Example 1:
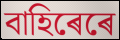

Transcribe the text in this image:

বাহিৰেৰে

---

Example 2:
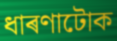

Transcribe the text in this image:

ধাৰণাটোক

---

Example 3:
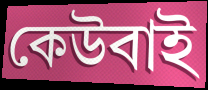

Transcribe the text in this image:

কেউবাই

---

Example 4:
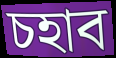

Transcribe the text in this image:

চহাব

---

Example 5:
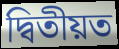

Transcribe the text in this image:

দ্বিতীয়ত